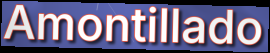
Amontillado